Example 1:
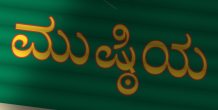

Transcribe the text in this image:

ಮುಷ್ಠಿಯ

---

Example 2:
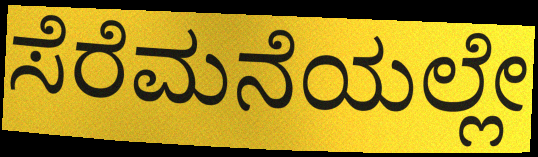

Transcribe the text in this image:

ಸೆರೆಮನೆಯಲ್ಲೇ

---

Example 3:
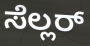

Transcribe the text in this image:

ಸೆಲ್ಲರ್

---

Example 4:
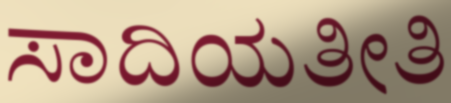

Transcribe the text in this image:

ಸಾದಿಯತೀತಿ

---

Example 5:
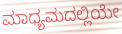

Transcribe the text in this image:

ಮಾಧ್ಯಮದಲ್ಲಿಯೇ